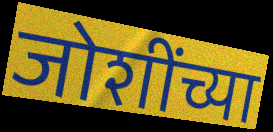
जोशींच्या